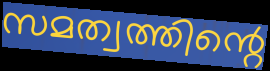
സമത്വത്തിന്റെ